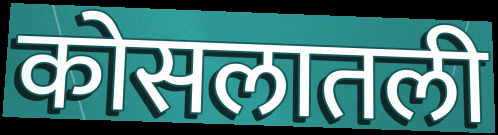
कोसलातली